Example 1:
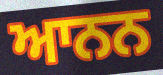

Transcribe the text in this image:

ਆਨਨ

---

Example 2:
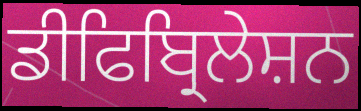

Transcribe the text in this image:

ਡੀਫਿਬ੍ਰਿਲੇਸ਼ਨ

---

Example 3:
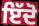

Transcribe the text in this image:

ਇੱਦੋ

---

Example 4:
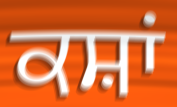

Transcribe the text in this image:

ਕਸ਼ਾਂ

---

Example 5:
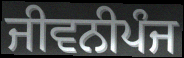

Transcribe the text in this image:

ਜੀਵਨੀਪੰਜ